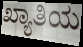
ಖ್ಯಾತಿಯ